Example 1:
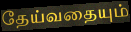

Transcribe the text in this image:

தேய்வதையும்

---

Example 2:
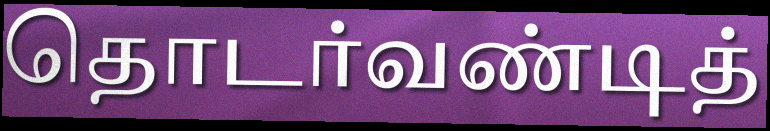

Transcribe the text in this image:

தொடர்வண்டித்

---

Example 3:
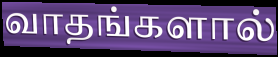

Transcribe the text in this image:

வாதங்களால்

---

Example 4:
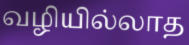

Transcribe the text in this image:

வழியில்லாத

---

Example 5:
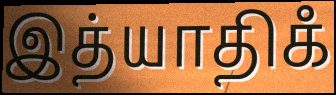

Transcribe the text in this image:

இத்யாதிகஂ